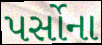
પર્સોના